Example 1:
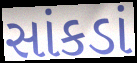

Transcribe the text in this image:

સાંકડાં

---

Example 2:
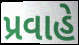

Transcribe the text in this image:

પ્રવાહે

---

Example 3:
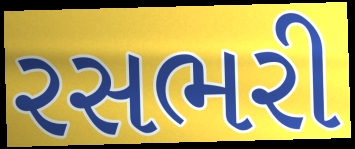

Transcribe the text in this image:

રસભરી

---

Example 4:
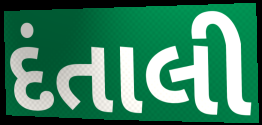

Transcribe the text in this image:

દંતાલી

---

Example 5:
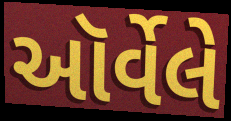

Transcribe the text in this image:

ઑર્વેલે